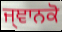
ਜ੍ਞਾਨਕੋ